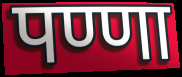
पण्णा